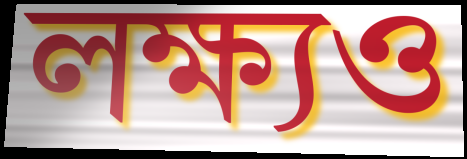
লক্ষ্যও